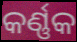
କର୍ଣ୍ଣକ